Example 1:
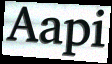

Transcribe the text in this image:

Aapi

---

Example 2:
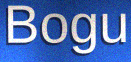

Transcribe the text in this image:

Bogu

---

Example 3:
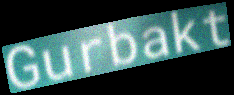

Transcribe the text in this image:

Gurbakt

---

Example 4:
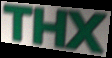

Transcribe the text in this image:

THX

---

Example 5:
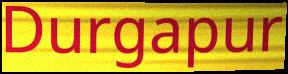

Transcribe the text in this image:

Durgapur